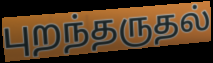
புறந்தருதல்